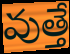
వుత్తే